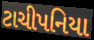
ટાચીપનિયા